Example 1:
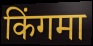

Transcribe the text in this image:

किंगमा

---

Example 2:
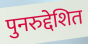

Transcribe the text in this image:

पुनरुद्देशित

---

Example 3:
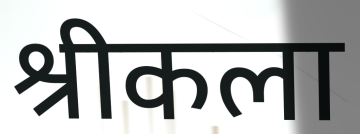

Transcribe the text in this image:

श्रीकला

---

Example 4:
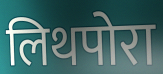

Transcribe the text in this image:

लिथपोरा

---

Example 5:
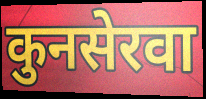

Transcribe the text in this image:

कुनसेरवा